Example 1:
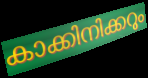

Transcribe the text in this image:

കാക്കിനിക്കറും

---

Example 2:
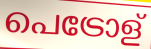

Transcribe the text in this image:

പെട്രോള്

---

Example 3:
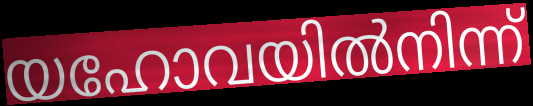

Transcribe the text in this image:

യഹോവയിൽനിന്ന്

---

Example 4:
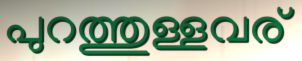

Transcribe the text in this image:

പുറത്തുള്ളവര്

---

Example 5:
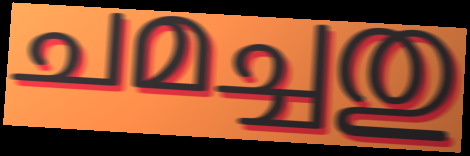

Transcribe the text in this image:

ചമച്ചതു